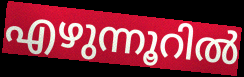
എഴുന്നൂറിൽ